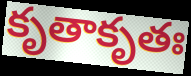
కృతాకృతః